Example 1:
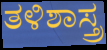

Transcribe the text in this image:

ತಳಿಶಾಸ್ತ್ರ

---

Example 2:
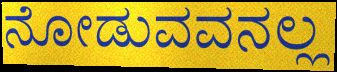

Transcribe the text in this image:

ನೋಡುವವನಲ್ಲ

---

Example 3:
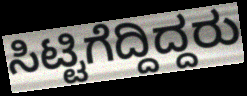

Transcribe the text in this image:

ಸಿಟ್ಟಿಗೆದ್ದಿದ್ದರು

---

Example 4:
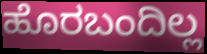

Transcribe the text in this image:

ಹೊರಬಂದಿಲ್ಲ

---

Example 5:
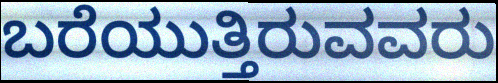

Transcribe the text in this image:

ಬರೆಯುತ್ತಿರುವವರು